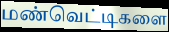
மண்வெட்டிகளை